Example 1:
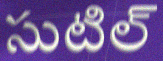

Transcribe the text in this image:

సుటిల్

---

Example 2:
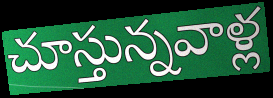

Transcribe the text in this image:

చూస్తున్నవాళ్ల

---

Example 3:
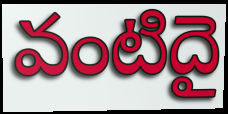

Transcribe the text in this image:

వంటిదై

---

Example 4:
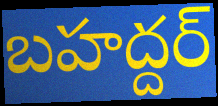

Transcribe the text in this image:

బహద్దర్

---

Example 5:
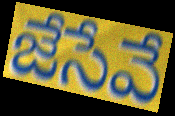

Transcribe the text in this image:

జేసేవే